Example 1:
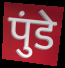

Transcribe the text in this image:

पुंडे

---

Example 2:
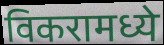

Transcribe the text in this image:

विकरामध्ये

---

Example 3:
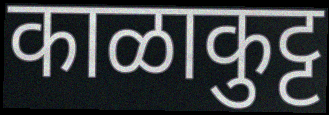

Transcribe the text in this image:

काळाकुट्ट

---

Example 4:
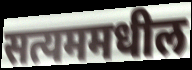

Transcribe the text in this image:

सत्यममधील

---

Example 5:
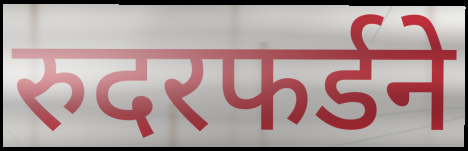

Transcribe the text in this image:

रुदरफर्डने